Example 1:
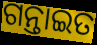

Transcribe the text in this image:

ଗନ୍ତାଇତ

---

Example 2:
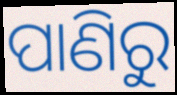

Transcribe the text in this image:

ପାଣିରୁ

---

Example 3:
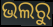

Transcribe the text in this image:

ଭଲରୁ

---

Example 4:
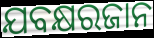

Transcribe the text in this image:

ଯବକ୍ଷରଜାନ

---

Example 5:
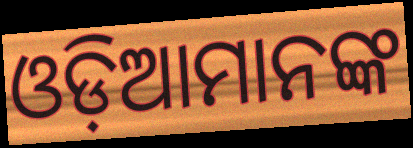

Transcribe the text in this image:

ଓଡ଼ିଆମାନଙ୍କ